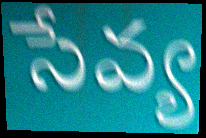
సేవ్య